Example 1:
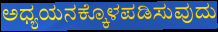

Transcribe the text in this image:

ಅಧ್ಯಯನಕ್ಕೊಳಪಡಿಸುವುದು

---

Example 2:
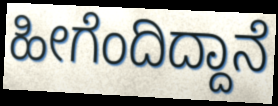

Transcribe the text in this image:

ಹೀಗೆಂದಿದ್ದಾನೆ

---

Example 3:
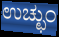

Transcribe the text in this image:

ಉಚ್ಛುಂ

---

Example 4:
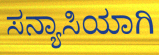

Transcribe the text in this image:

ಸನ್ಯಾಸಿಯಾಗಿ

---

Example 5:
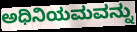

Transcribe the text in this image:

ಅಧಿನಿಯಮವನ್ನು